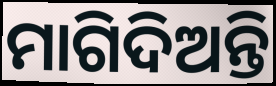
ମାଗିଦିଅନ୍ତି